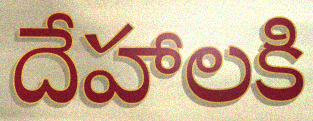
దేహాలకి